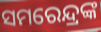
ସମରେନ୍ଦ୍ରଙ୍କ